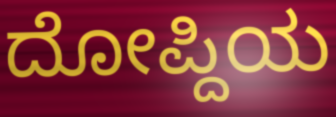
ದೋಪ್ದಿಯ